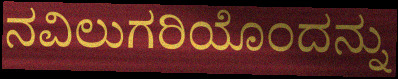
ನವಿಲುಗರಿಯೊಂದನ್ನು